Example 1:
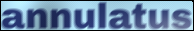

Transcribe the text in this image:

annulatus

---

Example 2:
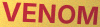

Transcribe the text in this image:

VENOM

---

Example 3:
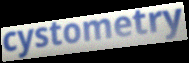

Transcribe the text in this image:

cystometry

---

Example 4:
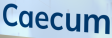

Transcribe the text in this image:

Caecum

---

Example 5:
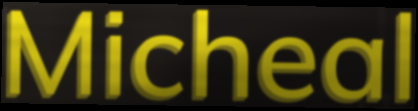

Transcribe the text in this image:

Micheal